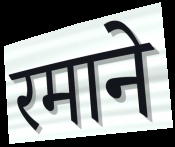
रमाने